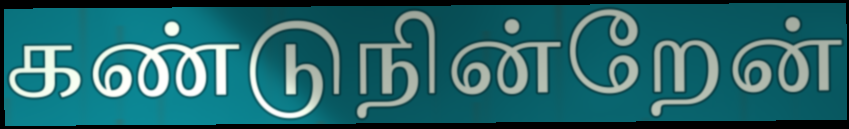
கண்டுநின்றேன்